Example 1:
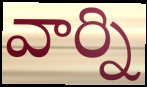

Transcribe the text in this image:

వార్ని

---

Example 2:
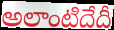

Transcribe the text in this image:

అలాంటిదేదీ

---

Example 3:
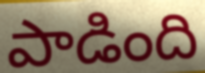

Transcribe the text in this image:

పాడింది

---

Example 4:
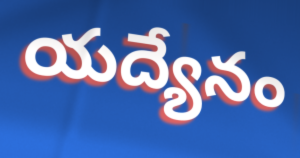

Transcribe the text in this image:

యద్యేనం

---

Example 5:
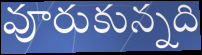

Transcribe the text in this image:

వూరుకున్నది